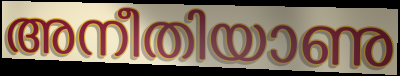
അനീതിയാണു